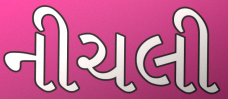
નીચલી